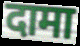
दामा